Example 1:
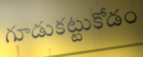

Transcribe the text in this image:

గూడుకట్టుకోడం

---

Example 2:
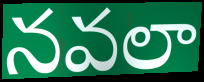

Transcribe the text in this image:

నవలా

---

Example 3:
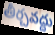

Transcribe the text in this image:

తీర్చవద్దు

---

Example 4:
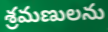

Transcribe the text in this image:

శ్రమణులను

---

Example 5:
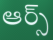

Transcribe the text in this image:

ఆర్స్